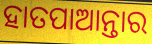
ହାତପାଆନ୍ତାର